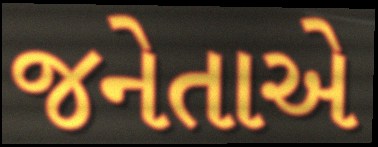
જનેતાએ